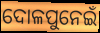
ଦୋଳପୁନେଇଁ